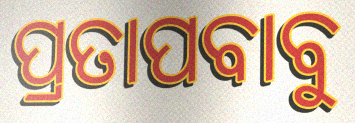
ପ୍ରତାପବାବୁ